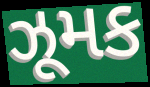
ઝૂમક